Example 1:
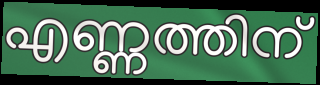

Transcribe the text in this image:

എണ്ണത്തിന്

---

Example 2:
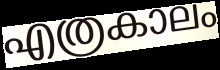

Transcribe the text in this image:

എത്രകാലം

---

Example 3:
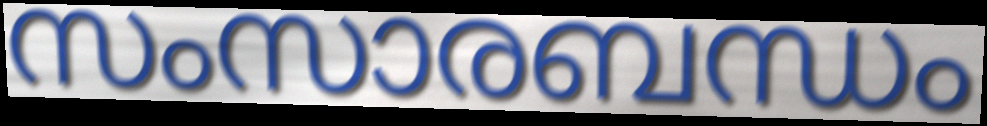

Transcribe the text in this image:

സംസാരബന്ധം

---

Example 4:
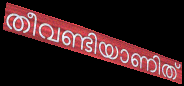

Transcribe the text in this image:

തീവണ്ടിയാണിത്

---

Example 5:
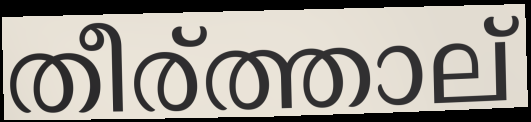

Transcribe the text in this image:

തീര്ത്താല്